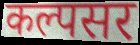
कल्पसर